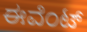
ಈವೆಂಟ್